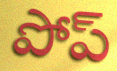
పోప్